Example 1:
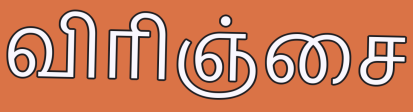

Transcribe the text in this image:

விரிஞ்சை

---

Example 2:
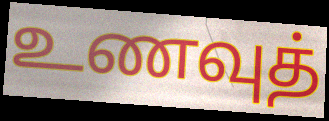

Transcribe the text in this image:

உணவுத்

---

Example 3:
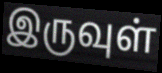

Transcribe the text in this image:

இருவுள்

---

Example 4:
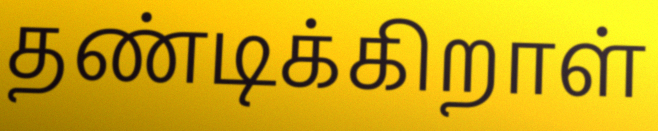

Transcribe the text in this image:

தண்டிக்கிறாள்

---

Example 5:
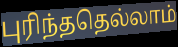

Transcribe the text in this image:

புரிந்ததெல்லாம்